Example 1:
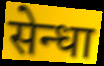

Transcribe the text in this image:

सेन्धा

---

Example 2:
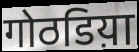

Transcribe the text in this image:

गोठडिय़ा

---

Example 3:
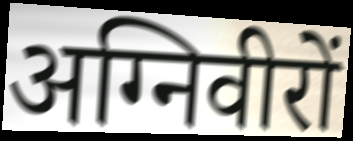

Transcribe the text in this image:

अग्निवीरों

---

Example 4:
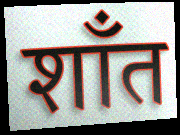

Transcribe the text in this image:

शाँत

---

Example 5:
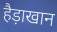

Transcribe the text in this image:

हैड़ाखान